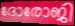
ദോരോജി